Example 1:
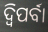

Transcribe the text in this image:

ଦ୍ଵିପର୍ବା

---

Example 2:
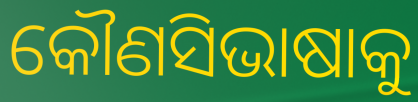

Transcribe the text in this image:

କୌଣସିଭାଷାକୁ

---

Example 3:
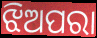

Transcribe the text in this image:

ଝିଅପରା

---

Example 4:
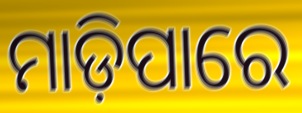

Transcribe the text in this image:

ମାଡ଼ିପାରେ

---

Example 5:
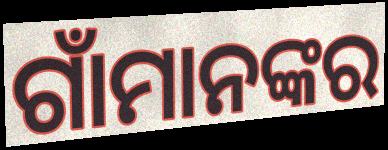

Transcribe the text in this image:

ଗାଁମାନଙ୍କର